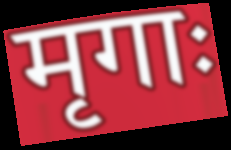
मृगाः